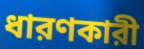
ধারণকারী